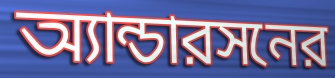
অ্যান্ডারসনের